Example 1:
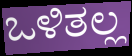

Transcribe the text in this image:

ಒಳಿತಲ್ಲ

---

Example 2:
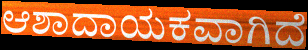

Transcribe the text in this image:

ಆಶಾದಾಯಕವಾಗಿದೆ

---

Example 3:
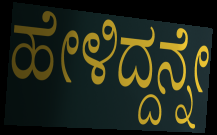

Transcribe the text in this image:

ಹೇಳಿದ್ದನ್ನೇ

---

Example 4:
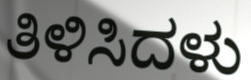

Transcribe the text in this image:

ತಿಳಿಸಿದಳು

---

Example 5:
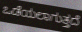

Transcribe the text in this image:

ಒಡೆಯಲಾಗುತ್ತದೆ